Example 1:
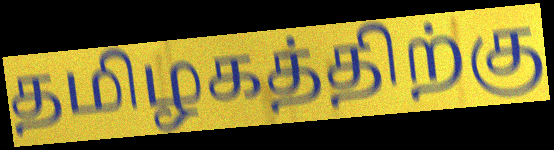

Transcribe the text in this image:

தமிழகத்திற்கு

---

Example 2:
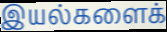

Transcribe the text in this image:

இயல்களைக்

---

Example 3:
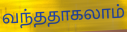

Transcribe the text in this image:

வந்ததாகலாம்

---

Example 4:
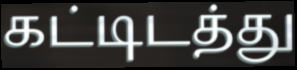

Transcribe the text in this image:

கட்டிடத்து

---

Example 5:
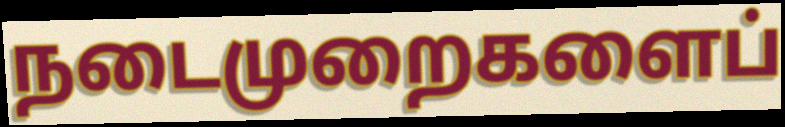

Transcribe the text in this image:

நடைமுறைகளைப்